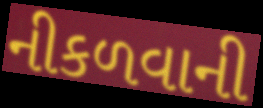
નીકળવાની